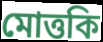
মোত্তকি